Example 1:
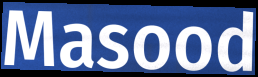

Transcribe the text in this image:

Masood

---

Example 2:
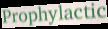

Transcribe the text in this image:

Prophylactic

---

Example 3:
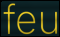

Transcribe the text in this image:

feu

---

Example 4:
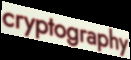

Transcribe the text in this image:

cryptography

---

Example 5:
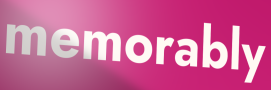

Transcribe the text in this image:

memorably